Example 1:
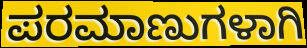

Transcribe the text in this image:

ಪರಮಾಣುಗಳಾಗಿ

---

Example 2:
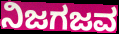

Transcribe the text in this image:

ನಿಜಗಜವ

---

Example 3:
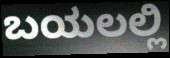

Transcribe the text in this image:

ಬಯಲಲ್ಲಿ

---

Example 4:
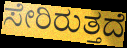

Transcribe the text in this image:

ಸೇರಿರುತ್ತದೆ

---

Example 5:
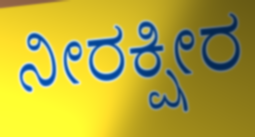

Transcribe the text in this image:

ನೀರಕ್ಷೀರ